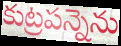
కుట్రపన్నెను